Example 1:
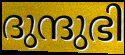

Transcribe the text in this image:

ദുന്ദുഭി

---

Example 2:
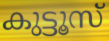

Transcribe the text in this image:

കുട്ടൂസ്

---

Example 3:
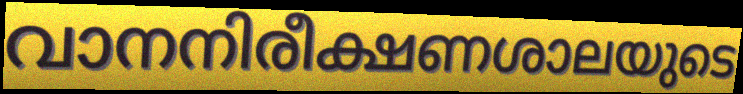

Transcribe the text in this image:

വാനനിരീക്ഷണശാലയുടെ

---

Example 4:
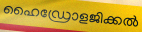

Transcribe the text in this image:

ഹൈഡ്രോളജിക്കൽ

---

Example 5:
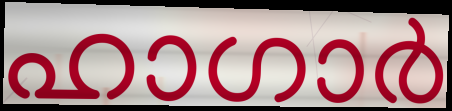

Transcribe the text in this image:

ഹാഗാർ